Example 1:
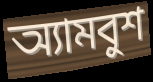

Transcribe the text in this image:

অ্যামবুশ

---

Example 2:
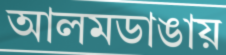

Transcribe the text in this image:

আলমডাঙায়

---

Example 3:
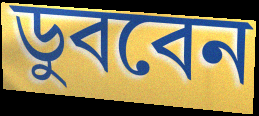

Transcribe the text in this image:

ডুববেন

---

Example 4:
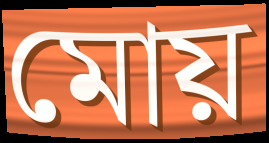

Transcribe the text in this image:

মোয়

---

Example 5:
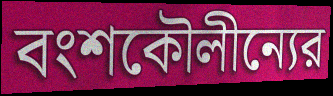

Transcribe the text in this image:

বংশকৌলীন্যের